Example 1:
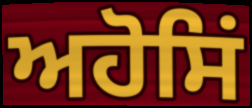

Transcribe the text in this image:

ਅਹੋਸਿਂ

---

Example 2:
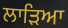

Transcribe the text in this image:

ਲਾੜਿਆ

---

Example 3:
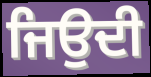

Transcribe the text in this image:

ਜਿਉਦੀ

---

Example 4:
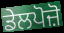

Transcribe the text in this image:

ਡੇਲਪੋਜ਼ੋ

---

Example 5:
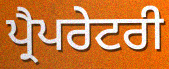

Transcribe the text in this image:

ਪ੍ਰੈਪਰੇਟਰੀ